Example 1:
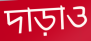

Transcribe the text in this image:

দাড়াও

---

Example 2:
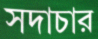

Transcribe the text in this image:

সদাচার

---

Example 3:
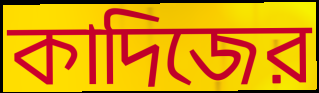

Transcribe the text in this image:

কাদিজের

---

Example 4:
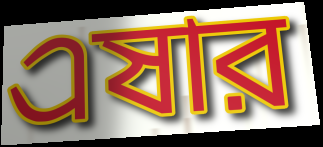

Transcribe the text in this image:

এষার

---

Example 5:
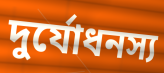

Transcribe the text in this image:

দুর্যোধনস্য